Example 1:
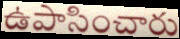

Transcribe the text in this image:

ఉపాసించారు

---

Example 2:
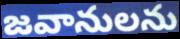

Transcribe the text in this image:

జవానులను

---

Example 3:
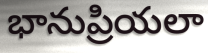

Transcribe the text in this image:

భానుప్రియలా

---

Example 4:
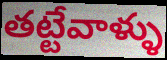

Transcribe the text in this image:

తట్టేవాళ్ళు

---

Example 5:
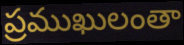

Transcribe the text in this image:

ప్రముఖులంతా